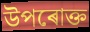
উপৰোক্ত